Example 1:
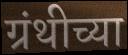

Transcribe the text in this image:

ग्रंथीच्या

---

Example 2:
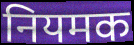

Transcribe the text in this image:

नियमक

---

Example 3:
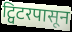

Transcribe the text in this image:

ट्विटरपासून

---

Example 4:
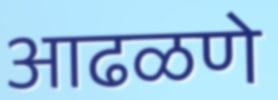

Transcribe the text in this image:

आढळणे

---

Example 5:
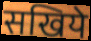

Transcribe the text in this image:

सखिये